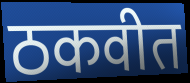
ठकवीत